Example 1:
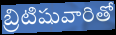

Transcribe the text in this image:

బ్రిటిషువారితో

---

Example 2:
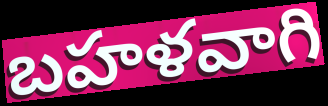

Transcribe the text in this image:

బహళవాగి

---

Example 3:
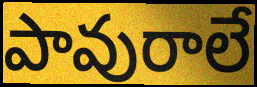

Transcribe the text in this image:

పావురాలే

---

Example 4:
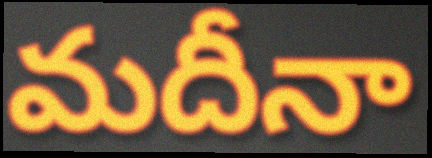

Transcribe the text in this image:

మదీనా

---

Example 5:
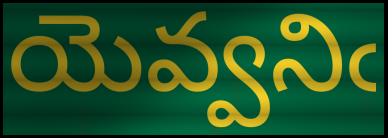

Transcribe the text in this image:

యెవ్వనిఁ